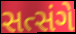
સત્સંગે